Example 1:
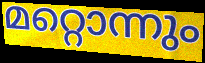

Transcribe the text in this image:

മറ്റൊന്നും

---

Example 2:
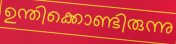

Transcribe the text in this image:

ഉന്തിക്കൊണ്ടിരുന്നു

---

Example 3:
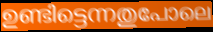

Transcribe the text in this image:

ഉണ്ടിട്ടെന്നതുപോലെ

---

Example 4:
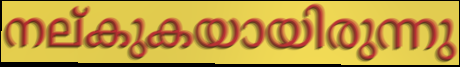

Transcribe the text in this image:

നല്കുകയായിരുന്നു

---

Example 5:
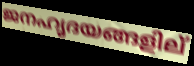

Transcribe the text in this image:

ജനഹൃദയങ്ങളില്